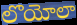
లొయోలా